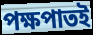
পক্ষপাতই